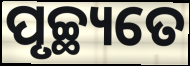
ପୃଚ୍ଛ୍ୟତେ